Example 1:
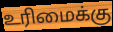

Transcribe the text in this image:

உரிமைக்கு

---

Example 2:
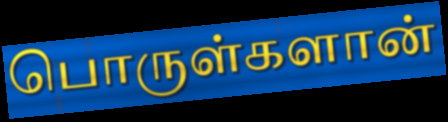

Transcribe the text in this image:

பொருள்களான்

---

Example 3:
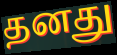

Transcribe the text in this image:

தனது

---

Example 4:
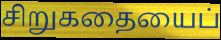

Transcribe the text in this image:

சிறுகதையைப்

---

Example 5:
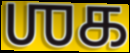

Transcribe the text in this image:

ஶக